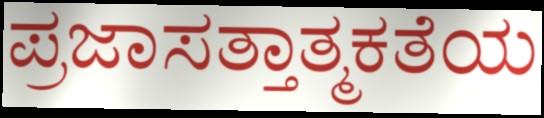
ಪ್ರಜಾಸತ್ತಾತ್ಮಕತೆಯ